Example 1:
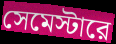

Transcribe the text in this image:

সেমেস্টারে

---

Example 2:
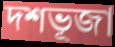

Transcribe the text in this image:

দশভূজা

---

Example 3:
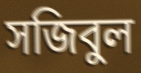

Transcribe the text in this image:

সজিবুল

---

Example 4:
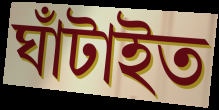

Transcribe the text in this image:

ঘাঁটাইত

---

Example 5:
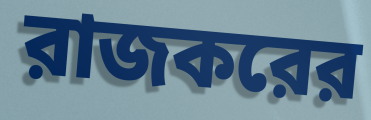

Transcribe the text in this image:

রাজকরের